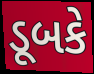
ડૂબકે